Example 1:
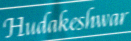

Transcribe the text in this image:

Hudakeshwar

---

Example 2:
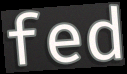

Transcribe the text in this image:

fed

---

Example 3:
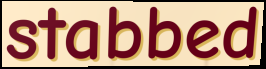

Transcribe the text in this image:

stabbed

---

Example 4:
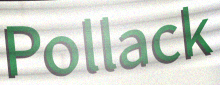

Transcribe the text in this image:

Pollack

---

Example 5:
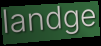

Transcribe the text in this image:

landge